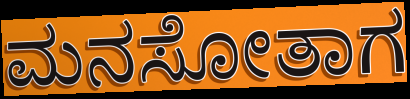
ಮನಸೋತಾಗ